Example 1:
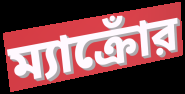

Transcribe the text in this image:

ম্যাক্রোঁর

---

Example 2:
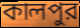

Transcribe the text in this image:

কালপুর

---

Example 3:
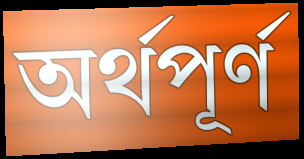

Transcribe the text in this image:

অর্থপূর্ণ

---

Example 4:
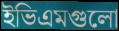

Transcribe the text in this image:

ইভিএমগুলো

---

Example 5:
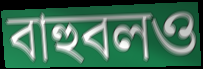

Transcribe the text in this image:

বাহুবলও